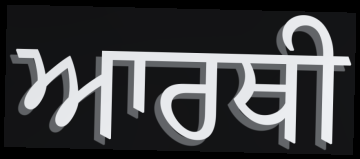
ਆਰਥੀ